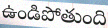
ఉండిపోతుంది